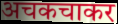
अचकचाकर